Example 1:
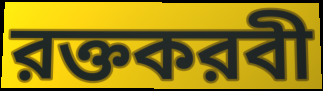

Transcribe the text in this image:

রক্তকরবী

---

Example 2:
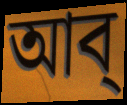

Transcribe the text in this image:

আব্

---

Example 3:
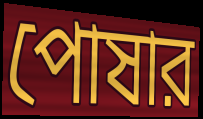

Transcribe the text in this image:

পোষার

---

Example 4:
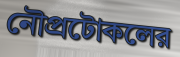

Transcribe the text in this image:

নৌপ্রটোকলের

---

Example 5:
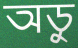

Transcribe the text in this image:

অডু